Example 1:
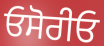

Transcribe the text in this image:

ਓਸੋਰੀਓ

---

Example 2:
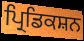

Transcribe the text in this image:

ਪ੍ਰਿਡਿਕਸ਼ਨ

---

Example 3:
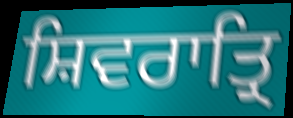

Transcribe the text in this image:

ਸ਼ਿਵਰਾਤ੍ਰਿ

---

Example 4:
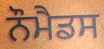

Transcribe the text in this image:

ਨੌਮੈਡਸ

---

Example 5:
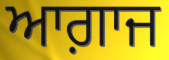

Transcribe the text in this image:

ਆਗ਼ਾਜ